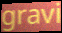
gravi